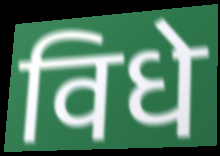
विधे